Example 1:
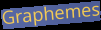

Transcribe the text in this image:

Graphemes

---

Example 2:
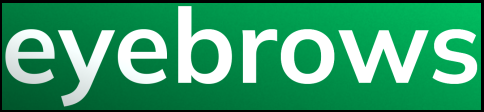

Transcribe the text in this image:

eyebrows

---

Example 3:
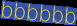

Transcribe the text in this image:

bbbbbb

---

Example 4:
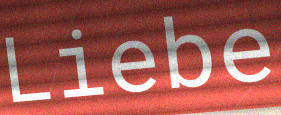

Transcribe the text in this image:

Liebe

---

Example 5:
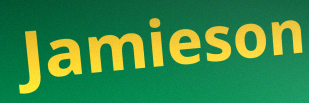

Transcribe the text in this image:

Jamieson